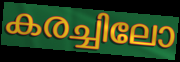
കരച്ചിലോ